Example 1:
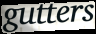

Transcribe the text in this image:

gutters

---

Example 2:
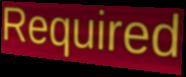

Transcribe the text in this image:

Required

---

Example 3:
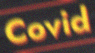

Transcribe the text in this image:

Covid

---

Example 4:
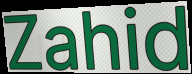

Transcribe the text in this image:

Zahid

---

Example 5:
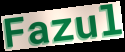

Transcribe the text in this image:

Fazul